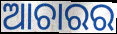
ଆଚାରର